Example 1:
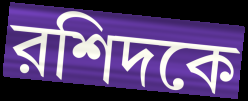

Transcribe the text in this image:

রশিদকে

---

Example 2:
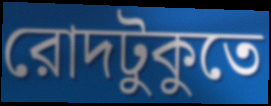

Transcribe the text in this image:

রোদটুকুতে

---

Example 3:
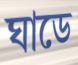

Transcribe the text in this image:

ঘাডে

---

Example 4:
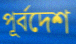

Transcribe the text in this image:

পূর্বদেশ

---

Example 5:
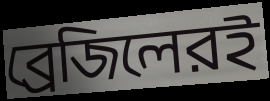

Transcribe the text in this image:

ব্রেজিলেরই